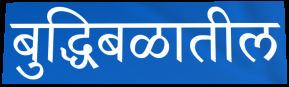
बुद्धिबळातील